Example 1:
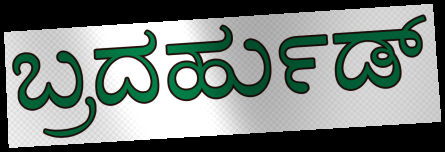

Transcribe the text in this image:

ಬ್ರದರ್ಹುಡ್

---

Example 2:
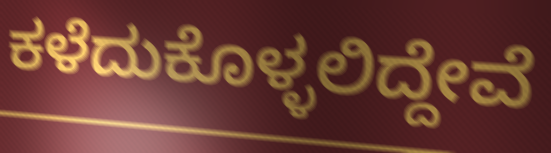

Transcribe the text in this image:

ಕಳೆದುಕೊಳ್ಳಲಿದ್ದೇವೆ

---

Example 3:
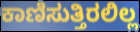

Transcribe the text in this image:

ಕಾಣಿಸುತ್ತಿರಲಿಲ್ಲ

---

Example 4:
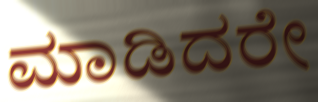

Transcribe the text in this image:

ಮಾಡಿದರೇ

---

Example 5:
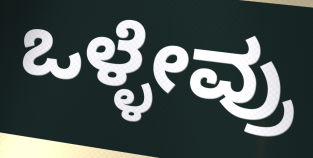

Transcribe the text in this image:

ಒಳ್ಳೇವ್ರು